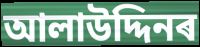
আলাউদ্দিনৰ